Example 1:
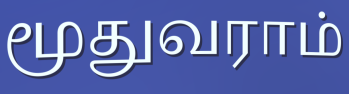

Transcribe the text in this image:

மூதுவராம்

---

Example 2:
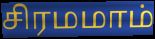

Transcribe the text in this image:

சிரமமாம்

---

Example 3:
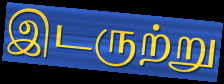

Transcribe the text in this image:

இடருற்று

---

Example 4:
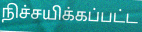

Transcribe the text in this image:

நிச்சயிக்கப்பட்ட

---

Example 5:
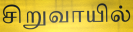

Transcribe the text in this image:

சிறுவாயில்